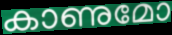
കാണുമോ